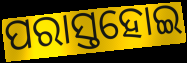
ପରାସ୍ତହୋଇ